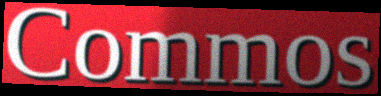
Commos